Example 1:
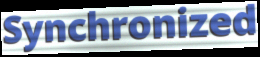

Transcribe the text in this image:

Synchronized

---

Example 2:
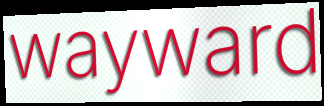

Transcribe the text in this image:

wayward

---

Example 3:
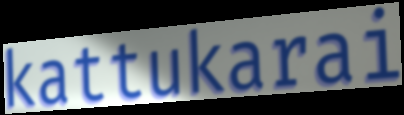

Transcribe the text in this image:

kattukarai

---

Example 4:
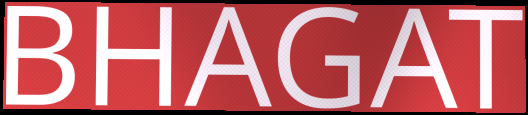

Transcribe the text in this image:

BHAGAT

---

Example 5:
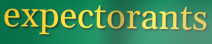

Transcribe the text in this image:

expectorants